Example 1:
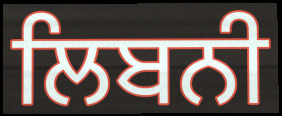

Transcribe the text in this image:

ਲਿਬਨੀ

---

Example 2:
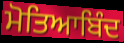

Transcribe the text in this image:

ਮੋਤਿਆਬਿੰਦ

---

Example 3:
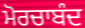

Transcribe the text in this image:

ਮੋਰਚਾਬੰਦ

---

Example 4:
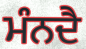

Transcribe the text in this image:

ਮੰਨਦੈ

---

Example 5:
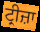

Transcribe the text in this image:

ਟ੍ਰੀਜ਼ਾ